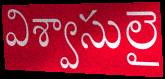
విశ్వాసులై